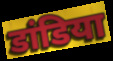
डांडिया